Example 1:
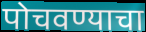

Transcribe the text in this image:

पोचवण्याचा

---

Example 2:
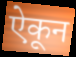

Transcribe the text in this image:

ऐकून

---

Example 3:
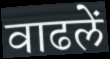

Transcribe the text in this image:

वाढलें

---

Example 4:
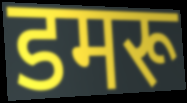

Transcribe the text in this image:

डमरू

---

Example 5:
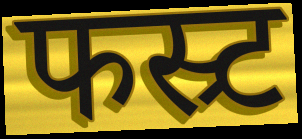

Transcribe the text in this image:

फस्र्ट